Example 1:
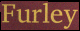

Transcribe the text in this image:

Furley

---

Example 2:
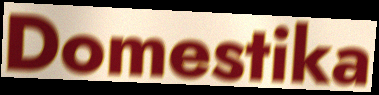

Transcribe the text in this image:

Domestika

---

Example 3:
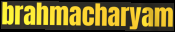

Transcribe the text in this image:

brahmacharyam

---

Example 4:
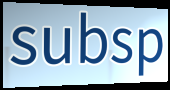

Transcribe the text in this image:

subsp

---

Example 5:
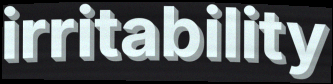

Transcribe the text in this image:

irritability